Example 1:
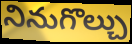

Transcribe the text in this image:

నినుగొల్చు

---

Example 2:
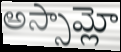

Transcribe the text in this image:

అస్సామ్లో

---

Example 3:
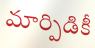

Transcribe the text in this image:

మార్పిడికీ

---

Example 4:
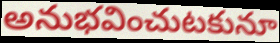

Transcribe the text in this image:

అనుభవించుటకునూ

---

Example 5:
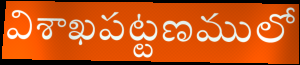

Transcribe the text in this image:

విశాఖపట్టణములో